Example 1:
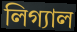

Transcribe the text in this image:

লিগ্যাল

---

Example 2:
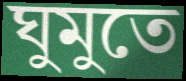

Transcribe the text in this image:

ঘুমুতে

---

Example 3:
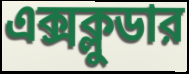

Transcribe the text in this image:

এক্সক্লুডার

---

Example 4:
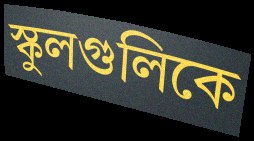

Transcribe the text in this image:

স্কুলগুলিকে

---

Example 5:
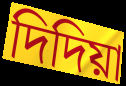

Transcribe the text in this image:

দিদিয়া